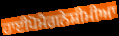
ਹਾਈਪੋਮੈਗਨੇਸ਼ੀਮੀਆ